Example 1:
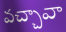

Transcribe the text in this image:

వచ్చావా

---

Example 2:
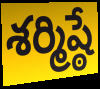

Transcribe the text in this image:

శర్మిష్ఠే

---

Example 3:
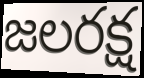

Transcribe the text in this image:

జలరక్ష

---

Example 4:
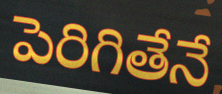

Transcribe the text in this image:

పెరిగితేనే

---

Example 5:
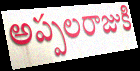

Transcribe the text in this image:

అప్పలరాజుకి